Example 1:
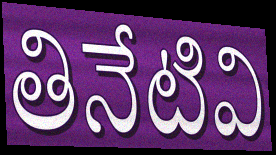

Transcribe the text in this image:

తినేటివి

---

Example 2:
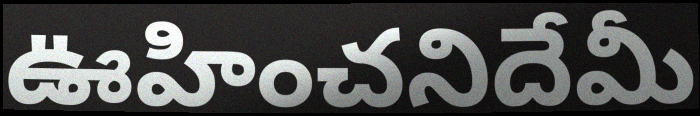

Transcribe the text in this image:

ఊహించనిదేమీ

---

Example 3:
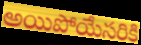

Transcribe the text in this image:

అయిపోయేసరికి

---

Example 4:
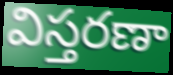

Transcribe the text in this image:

విస్తరణా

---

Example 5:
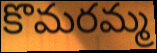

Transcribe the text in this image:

కొమరమ్మ